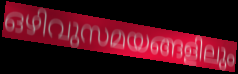
ഒഴിവുസമയങ്ങളിലും